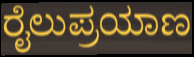
ರೈಲುಪ್ರಯಾಣ